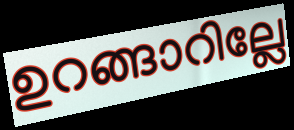
ഉറങ്ങാറില്ലേ